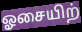
ஓசையிற்